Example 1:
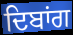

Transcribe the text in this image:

ਦਿਬਾਂਗ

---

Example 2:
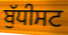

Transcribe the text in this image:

ਬੁੱਧੀਸਟ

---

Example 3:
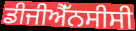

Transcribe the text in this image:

ਡੀਜੀਐੱਨਸੀਸੀ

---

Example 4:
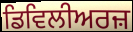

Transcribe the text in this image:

ਡਿਵਿਲੀਅਰਜ਼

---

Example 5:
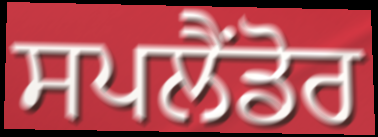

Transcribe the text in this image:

ਸਪਲੈਂਡੋਰ